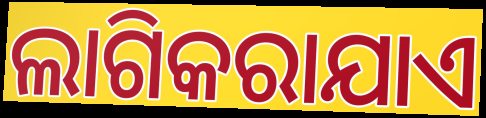
ଲାଗିକରାଯାଏ